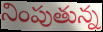
నింపుతున్న